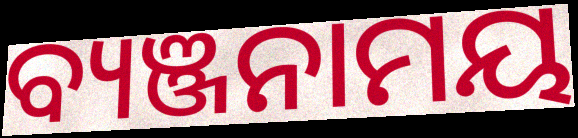
ବ୍ୟଞ୍ଜନାମୟ